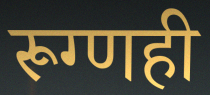
रूग्णही